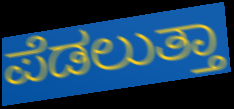
ಪೆಡಲುತ್ತಾ